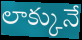
లాక్కునే